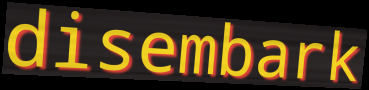
disembark